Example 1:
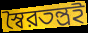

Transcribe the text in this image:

স্বৈরতন্ত্রই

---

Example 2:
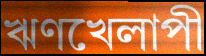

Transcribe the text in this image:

ঋণখেলাপী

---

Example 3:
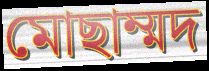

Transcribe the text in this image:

মোছাম্মদ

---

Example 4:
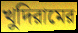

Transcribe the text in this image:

খুদিরামের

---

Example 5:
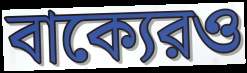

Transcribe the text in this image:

বাক্যেরও